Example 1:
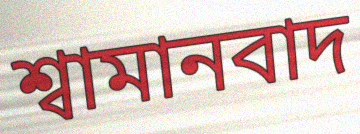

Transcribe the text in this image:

শ্বামানবাদ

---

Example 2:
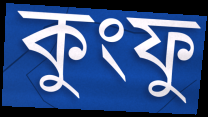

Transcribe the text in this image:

কুংফু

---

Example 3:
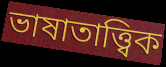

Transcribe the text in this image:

ভাষাতাত্ত্বিক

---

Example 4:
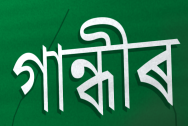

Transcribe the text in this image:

গান্ধীৰ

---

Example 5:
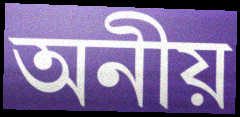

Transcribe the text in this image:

অনীয়